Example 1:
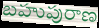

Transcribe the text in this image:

బహుపురాణ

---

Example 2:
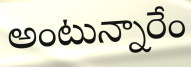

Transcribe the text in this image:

అంటున్నారేం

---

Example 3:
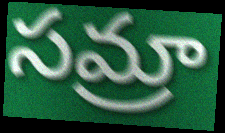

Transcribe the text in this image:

సమ్రా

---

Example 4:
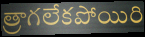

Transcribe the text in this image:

త్రాగలేకపోయిరి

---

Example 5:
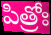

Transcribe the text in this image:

పిత్రోః